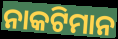
ନାକଟିମାନ